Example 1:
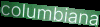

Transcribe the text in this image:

columbiana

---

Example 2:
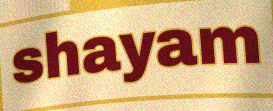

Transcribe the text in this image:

shayam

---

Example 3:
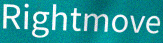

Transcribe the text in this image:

Rightmove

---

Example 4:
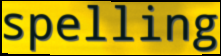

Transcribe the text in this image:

spelling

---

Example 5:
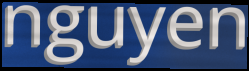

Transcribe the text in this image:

nguyen